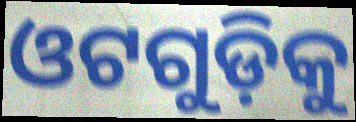
ଓଟଗୁଡ଼ିକୁ